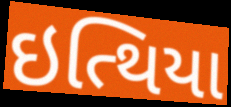
ઇત્થિયા